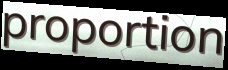
proportion